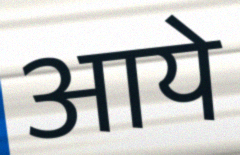
आये